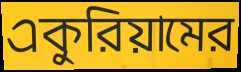
একুরিয়ামের